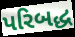
પરિબદ્ધ